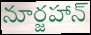
నూర్జహాన్